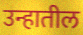
उन्हातील